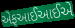
એફઆઈઆઈએ